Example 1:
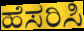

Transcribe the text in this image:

ಹೆಸರಿಸಿ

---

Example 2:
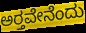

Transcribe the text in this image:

ಅರ‍್ತವೇನೆಂದು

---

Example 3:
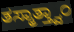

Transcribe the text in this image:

ತಸ್ಮಾತ್ತ್ವಾಂ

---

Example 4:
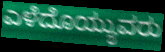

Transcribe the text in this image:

ಎಳೆದೊಯ್ಯುವರು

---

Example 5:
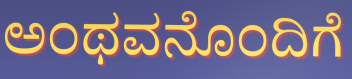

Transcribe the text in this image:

ಅಂಥವನೊಂದಿಗೆ